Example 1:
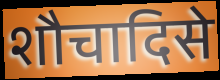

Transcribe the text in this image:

शौचादिसे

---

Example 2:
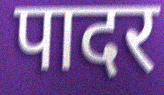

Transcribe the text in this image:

पादर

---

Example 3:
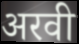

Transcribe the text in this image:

अरवी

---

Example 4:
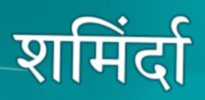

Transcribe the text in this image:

शमिंर्दा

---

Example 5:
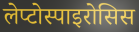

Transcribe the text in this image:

लेप्टोस्पाइरोसिस